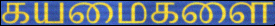
கயமைகளை